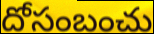
దోసంబంచు